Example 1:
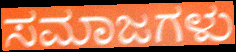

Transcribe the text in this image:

ಸಮಾಜಗಳು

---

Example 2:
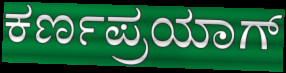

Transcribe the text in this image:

ಕರ್ಣಪ್ರಯಾಗ್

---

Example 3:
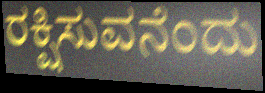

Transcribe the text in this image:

ರಕ್ಷಿಸುವನೆಂದು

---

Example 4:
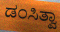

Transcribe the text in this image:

ಡಂಸಿತ್ವಾ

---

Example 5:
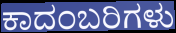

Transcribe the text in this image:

ಕಾದಂಬರಿಗಳು